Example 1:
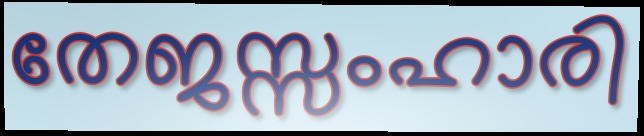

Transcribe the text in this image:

തേജസ്സംഹാരി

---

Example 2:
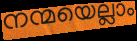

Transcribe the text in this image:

നന്മയെല്ലാം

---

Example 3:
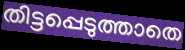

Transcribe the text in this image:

തിട്ടപ്പെടുത്താതെ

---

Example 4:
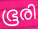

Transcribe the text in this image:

ഭൂരി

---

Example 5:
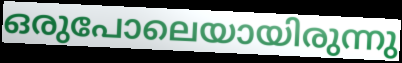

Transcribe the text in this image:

ഒരുപോലെയായിരുന്നു